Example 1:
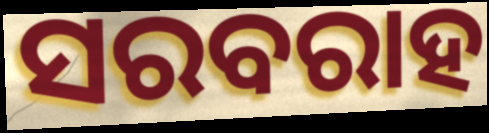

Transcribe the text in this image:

ସରବରାହ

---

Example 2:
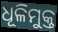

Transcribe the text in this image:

ଧୂଳିମୁକ୍ତ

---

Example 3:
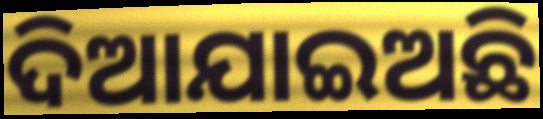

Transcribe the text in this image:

ଦିଆଯାଇଅଛି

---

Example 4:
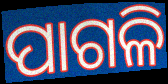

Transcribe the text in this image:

ପାଗଳି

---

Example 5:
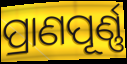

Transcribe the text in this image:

ପ୍ରାଣପୂର୍ଣ୍ଣ